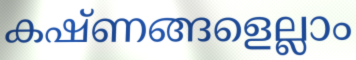
കഷ്ണങ്ങളെല്ലാം